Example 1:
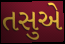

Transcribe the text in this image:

તસુએ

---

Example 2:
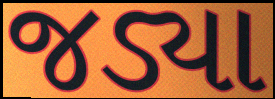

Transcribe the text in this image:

જડ્યા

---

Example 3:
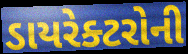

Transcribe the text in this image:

ડાયરેક્ટરોની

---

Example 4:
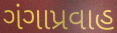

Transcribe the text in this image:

ગંગાપ્રવાહ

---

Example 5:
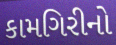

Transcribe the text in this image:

કામગિરીનો